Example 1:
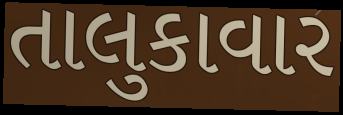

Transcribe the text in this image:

તાલુકાવાર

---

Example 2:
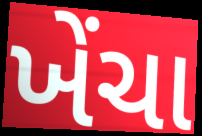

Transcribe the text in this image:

ખેંચા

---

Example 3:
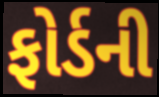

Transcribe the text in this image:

ફોર્ડની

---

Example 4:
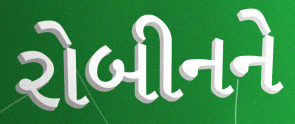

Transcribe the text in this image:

રોબીનને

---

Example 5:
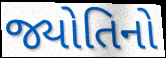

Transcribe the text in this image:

જ્યોતિનો